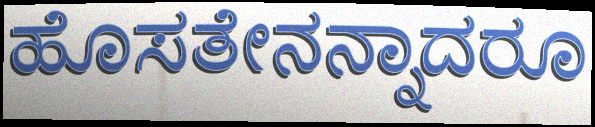
ಹೊಸತೇನನ್ನಾದರೂ